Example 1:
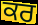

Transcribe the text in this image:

ਕਰ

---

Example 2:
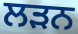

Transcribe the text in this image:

ਲਡ਼ਨ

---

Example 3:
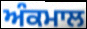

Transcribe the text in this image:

ਅੰਕਮਾਲ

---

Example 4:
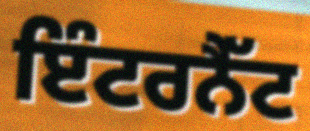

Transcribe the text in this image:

ਇੰਟਰਨੈੱਟ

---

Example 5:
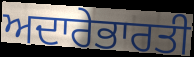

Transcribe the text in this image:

ਅਦਾਰੇਭਾਰਤੀ